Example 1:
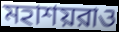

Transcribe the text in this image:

মহাশয়রাও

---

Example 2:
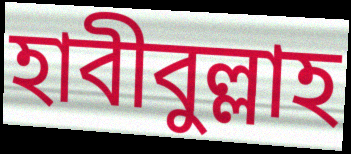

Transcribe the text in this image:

হাবীবুল্লাহ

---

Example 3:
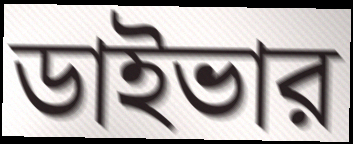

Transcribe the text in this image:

ডাইভার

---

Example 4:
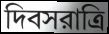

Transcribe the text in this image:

দিবসরাত্রি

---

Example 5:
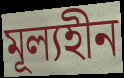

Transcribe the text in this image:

মূল্যহীন